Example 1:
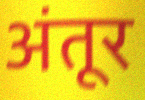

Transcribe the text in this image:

अंतूर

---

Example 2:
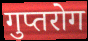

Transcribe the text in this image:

गुप्तरोग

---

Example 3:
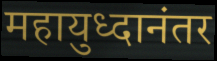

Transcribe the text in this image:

महायुध्दानंतर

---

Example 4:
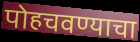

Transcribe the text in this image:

पोहचवण्याचा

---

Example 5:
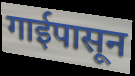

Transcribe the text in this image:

गाईपासून